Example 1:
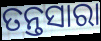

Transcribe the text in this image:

ତନ୍ତସାରା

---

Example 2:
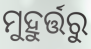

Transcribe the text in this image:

ମୁହୁର୍ତ୍ତରୁ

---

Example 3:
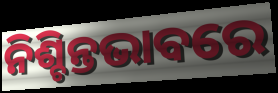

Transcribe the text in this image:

ନିଶ୍ଚିନ୍ତଭାବରେ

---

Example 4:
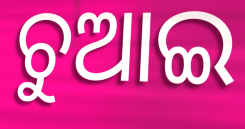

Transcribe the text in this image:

ଚୁଆଇ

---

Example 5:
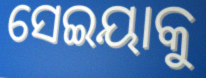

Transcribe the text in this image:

ସେଇୟାକୁ